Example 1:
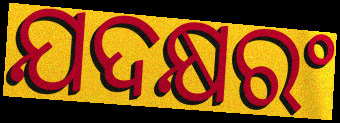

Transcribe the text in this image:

ଯଦକ୍ଷରଂ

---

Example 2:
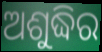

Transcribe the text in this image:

ଅଶୁଦ୍ଧିର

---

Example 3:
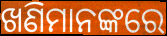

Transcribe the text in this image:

ଖଣିମାନଙ୍କରେ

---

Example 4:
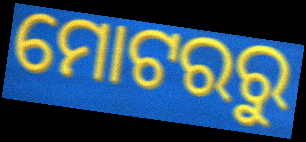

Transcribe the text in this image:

ମୋଟରରୁ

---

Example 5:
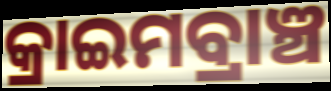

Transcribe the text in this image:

କ୍ରାଇମବ୍ରାଞ୍ଚ